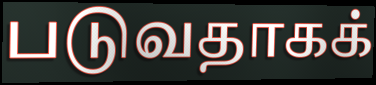
படுவதாகக்